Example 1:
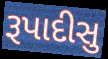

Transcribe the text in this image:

રૂપાદીસુ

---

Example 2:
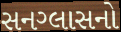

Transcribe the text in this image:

સનગ્લાસનો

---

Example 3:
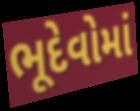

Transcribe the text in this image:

ભૂદેવોમાં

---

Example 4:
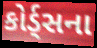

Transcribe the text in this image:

કોર્ડ્સના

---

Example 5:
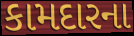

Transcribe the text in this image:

કામદારના